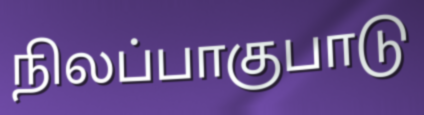
நிலப்பாகுபாடு